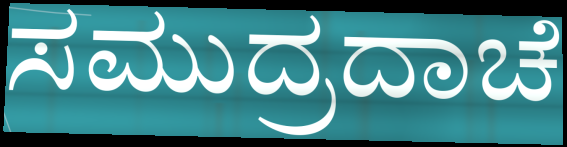
ಸಮುದ್ರದಾಚೆ